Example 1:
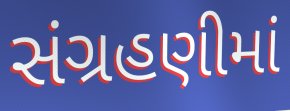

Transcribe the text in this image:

સંગ્રહણીમાં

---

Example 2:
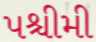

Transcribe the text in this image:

પશ્ચીમી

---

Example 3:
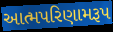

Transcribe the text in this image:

આત્મપરિણામરૂપ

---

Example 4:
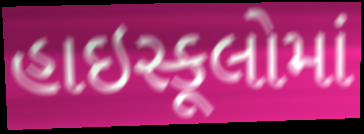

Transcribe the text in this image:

હાઇસ્કૂલોમાં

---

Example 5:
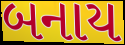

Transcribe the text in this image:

બનાય